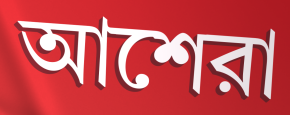
আশেরা